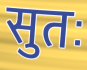
सुतः